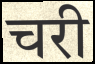
चरी